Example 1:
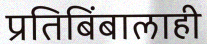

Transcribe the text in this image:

प्रतिबिंबालाही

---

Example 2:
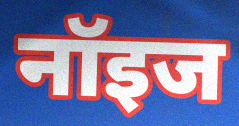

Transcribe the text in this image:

नॉइज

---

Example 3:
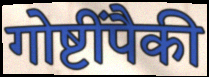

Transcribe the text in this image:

गोष्टींपैकी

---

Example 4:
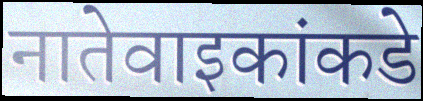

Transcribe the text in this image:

नातेवाइकांकडे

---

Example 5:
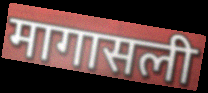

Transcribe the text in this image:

मागासली